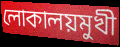
লোকালয়মুখী